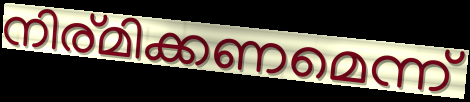
നിര്മിക്കണമെന്ന്